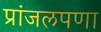
प्रांजलपणा